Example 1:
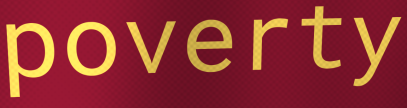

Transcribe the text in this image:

poverty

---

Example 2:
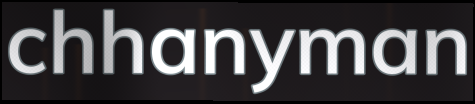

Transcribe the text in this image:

chhanyman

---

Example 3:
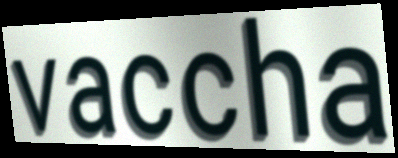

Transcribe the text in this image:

vaccha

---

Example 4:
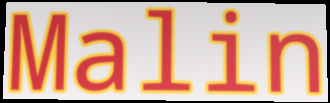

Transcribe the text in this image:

Malin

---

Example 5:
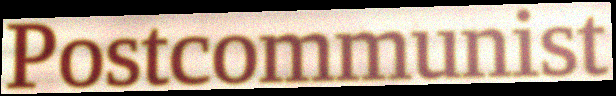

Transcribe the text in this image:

Postcommunist